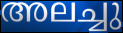
അലച്ചു